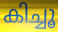
കിച്ചൂ